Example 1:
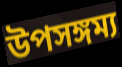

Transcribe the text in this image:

উপসঙ্গম্য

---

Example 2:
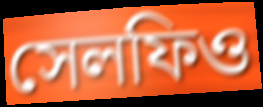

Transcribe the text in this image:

সেলফিও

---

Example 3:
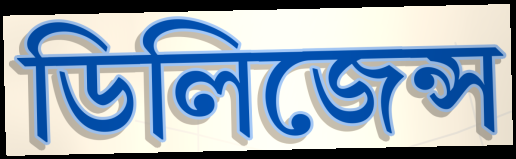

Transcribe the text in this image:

ডিলিজেন্স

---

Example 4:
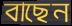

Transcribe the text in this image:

বাছেন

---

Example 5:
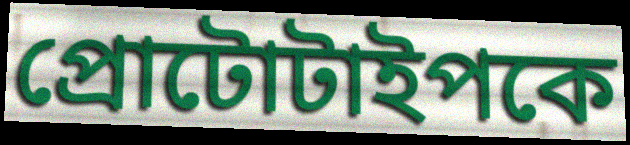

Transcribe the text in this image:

প্রোটোটাইপকে